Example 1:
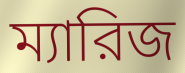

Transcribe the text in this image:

ম্যারিজ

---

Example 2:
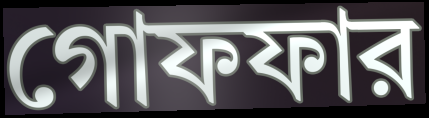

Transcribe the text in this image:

গোফফার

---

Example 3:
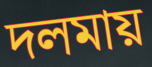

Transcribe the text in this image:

দলমায়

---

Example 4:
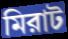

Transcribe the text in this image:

মিরাট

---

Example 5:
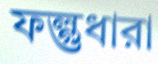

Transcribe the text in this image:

ফল্গুধারা